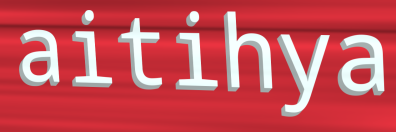
aitihya